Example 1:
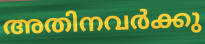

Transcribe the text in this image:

അതിനവർക്കു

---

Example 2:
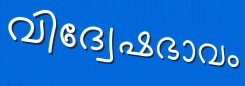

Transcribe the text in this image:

വിദ്വേഷഭാവം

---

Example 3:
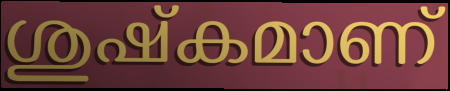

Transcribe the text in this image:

ശുഷ്‌കമാണ്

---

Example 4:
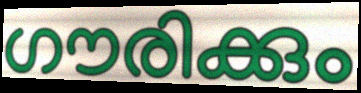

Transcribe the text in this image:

ഗൗരിക്കും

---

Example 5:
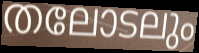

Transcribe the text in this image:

തലോടലും